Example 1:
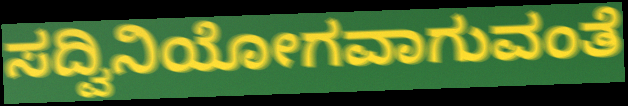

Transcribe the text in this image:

ಸದ್ವಿನಿಯೋಗವಾಗುವಂತೆ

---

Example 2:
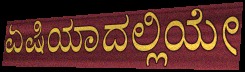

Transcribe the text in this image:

ಏಷಿಯಾದಲ್ಲಿಯೇ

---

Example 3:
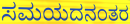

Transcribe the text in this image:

ಸಮಯದನಂತರ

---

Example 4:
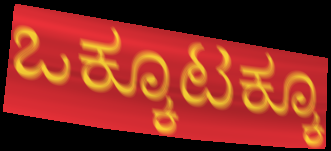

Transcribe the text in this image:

ಒಕ್ಕೂಟಕ್ಕೂ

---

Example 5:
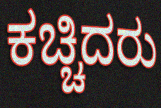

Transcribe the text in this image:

ಕಚ್ಚಿದರು